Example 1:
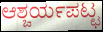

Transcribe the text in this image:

ಆಶ್ಚರ್ಯಪಟ್ಟ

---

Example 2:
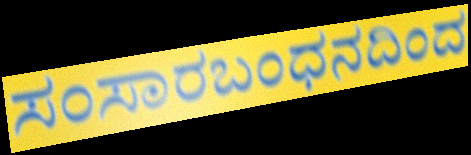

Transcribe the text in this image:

ಸಂಸಾರಬಂಧನದಿಂದ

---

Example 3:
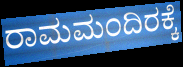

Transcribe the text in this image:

ರಾಮಮಂದಿರಕ್ಕೆ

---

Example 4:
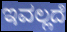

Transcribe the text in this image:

ಇವಲ್ಲದೆ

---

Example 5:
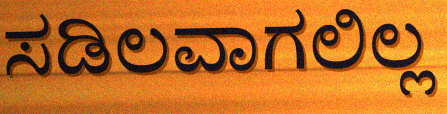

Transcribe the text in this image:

ಸಡಿಲವಾಗಲಿಲ್ಲ